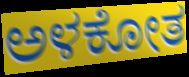
ಅಳಕೋತ